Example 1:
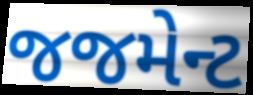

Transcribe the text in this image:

જજમેન્ટ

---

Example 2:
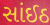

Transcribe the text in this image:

સાંઈઠ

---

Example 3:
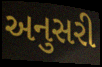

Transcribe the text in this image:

અનુસરી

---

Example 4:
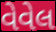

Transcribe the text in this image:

વેવેલ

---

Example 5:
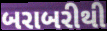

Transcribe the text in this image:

બરાબરીથી